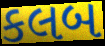
કલબ